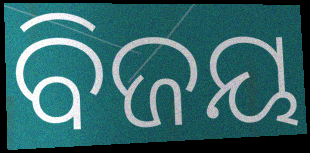
ବିଜୟ